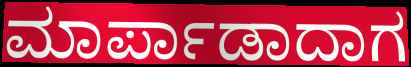
ಮಾರ್ಪಾಡಾದಾಗ